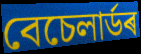
বেচেলাৰ্ডৰ